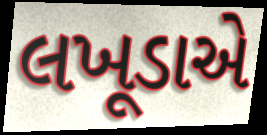
લખૂડાએ